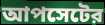
আপসেটের